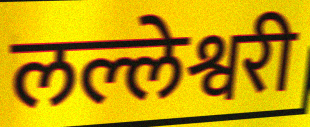
लल्लेश्वरी